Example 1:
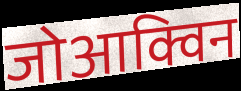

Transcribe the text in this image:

जोआक्विन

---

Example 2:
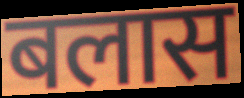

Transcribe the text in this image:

बलास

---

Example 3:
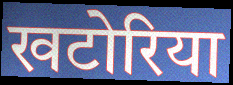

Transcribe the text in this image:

खटोरिया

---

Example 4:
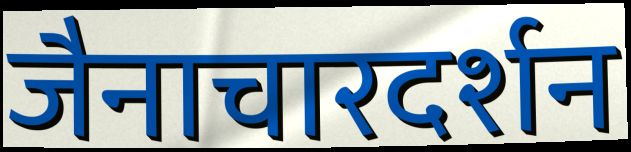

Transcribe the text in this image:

जैनाचारदर्शन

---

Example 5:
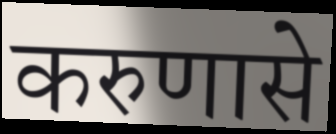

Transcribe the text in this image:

करुणासे